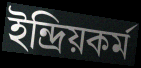
ইন্দ্রিয়কর্ম